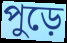
পুড়ে